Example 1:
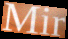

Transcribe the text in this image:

Mir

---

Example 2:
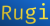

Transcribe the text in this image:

Rugi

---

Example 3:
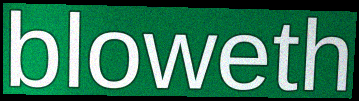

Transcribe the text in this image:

bloweth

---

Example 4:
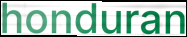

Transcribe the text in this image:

honduran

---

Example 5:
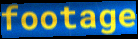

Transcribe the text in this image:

footage